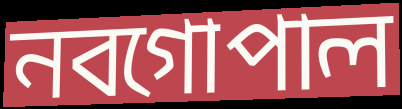
নবগোপাল